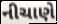
નીચાણે